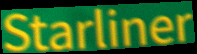
Starliner